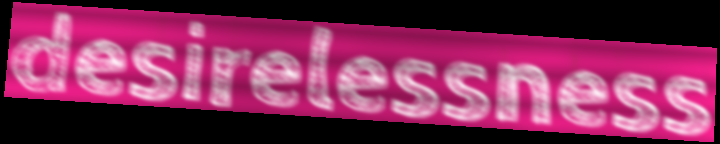
desirelessness